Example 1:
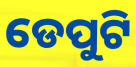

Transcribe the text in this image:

ଡେପୁଟି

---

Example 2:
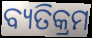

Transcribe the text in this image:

ବ୍ୟତିକ୍ରମ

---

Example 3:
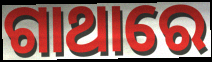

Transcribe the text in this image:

ଗାଥାରେ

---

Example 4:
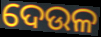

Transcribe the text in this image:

ଦେଉଳ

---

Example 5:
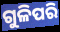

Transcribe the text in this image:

ଗୁଳିପରି